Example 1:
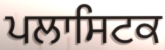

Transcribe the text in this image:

ਪਲਾਸਿਟਕ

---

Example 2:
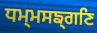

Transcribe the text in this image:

ਧਮ੍ਮਸਙ੍ਗਣਿ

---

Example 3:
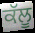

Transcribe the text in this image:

ਕੱਲੂ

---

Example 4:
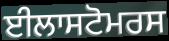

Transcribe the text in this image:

ਈਲਾਸਟੋਮਰਸ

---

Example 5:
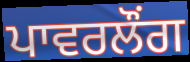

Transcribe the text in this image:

ਪਾਵਰਲੌਂਗ